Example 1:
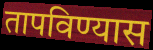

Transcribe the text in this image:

तापविण्यास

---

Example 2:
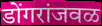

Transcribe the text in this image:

डोंगरांजवळ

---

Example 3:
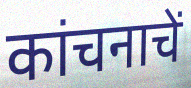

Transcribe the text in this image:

कांचनाचें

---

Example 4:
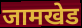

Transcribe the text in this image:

जामखेड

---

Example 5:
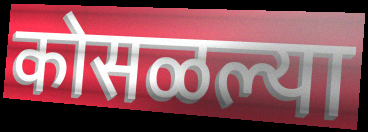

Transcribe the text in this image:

कोसळल्या